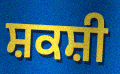
ਸ਼ਕਸ਼ੀ